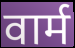
वार्म